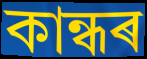
কান্ধৰ